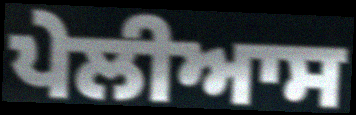
ਪੇਲੀਆਸ